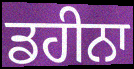
ਡਹੀਨਾ